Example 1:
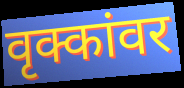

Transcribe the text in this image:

वृक्कांवर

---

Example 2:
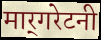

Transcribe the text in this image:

मार्गरेटनी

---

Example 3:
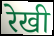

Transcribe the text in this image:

रेखी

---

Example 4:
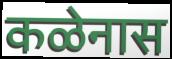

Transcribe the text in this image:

कळेनास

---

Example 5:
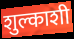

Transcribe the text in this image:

शुल्काशी